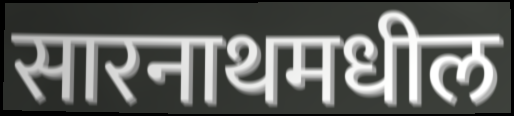
सारनाथमधील